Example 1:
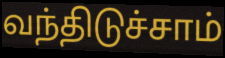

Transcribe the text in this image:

வந்திடுச்சாம்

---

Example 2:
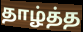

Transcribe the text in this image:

தாழ்த்த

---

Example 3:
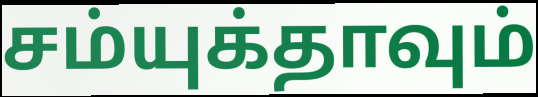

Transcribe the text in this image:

சம்யுக்தாவும்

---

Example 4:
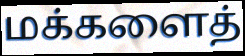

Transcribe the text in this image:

மக்களைத்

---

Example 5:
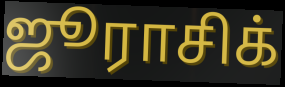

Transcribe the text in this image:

ஜூராசிக்